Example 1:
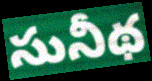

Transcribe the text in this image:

సునీథ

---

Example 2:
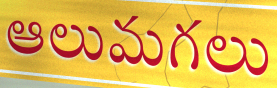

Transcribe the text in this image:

ఆలుమగలు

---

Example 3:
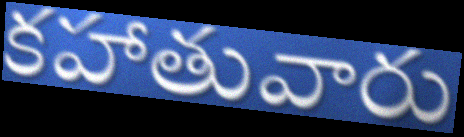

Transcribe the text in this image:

కహాతువారు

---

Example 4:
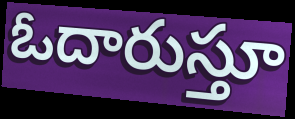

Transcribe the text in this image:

ఓదారుస్తూ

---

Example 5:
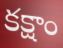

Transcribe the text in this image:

కక్షాం